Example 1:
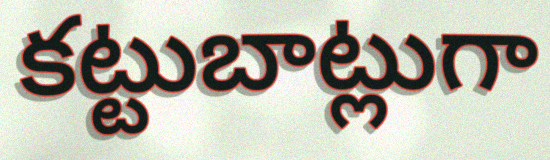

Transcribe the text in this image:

కట్టుబాట్లుగా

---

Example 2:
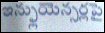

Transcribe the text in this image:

ఇన్ఫ్లుయెన్సర్లపై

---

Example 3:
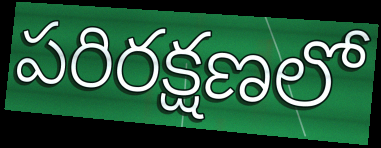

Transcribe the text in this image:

పరిరక్షణలో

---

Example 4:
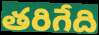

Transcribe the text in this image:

తరిగేది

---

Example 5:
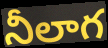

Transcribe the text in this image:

నీలాగ